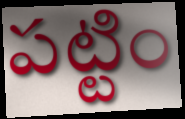
పట్టిం